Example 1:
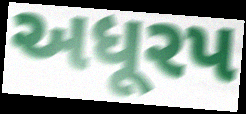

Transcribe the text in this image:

અધૂરપ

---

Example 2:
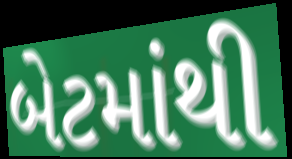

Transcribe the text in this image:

બેટમાંથી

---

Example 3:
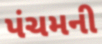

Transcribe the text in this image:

પંચમની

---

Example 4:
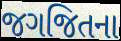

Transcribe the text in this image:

જગજિતના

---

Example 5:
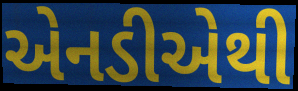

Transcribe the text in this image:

એનડીએથી